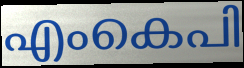
എംകെപി